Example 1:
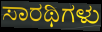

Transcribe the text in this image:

ಸಾರಥಿಗಳು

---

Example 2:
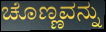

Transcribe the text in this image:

ಚೊಣ್ಣವನ್ನು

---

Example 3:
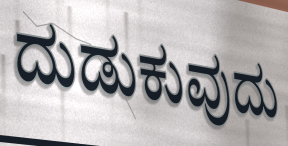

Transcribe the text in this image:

ದುಡುಕುವುದು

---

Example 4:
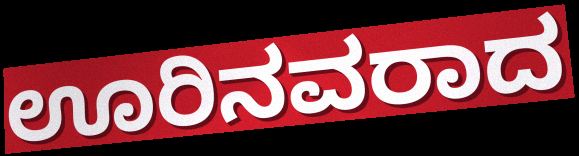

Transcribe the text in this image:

ಊರಿನವರಾದ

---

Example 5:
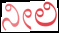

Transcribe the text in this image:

ನೀಲಿ